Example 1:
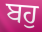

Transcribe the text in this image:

ਬਹੁ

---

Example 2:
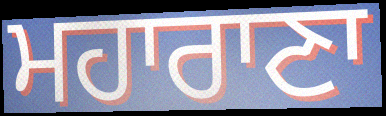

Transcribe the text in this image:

ਮਹਾਰਾਣਾ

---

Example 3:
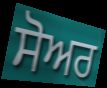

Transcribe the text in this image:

ਸੋਅਰ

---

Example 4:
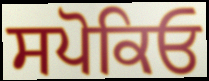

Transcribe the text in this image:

ਸਪੋਕਿਓ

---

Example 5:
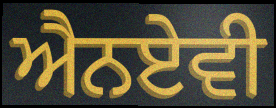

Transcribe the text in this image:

ਐਨਏਵੀ